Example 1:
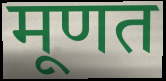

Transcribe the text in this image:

मूणत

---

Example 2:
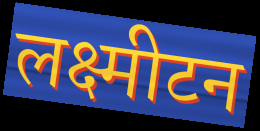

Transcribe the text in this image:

लक्ष्मीटन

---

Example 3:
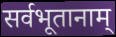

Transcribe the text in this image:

सर्वभूतानाम्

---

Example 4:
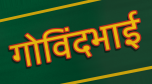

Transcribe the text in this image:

गोविंदभाई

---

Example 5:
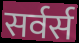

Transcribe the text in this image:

सर्वर्स